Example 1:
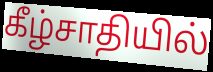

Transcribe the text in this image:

கீழ்சாதியில்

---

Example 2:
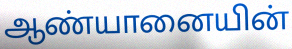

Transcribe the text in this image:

ஆண்யானையின்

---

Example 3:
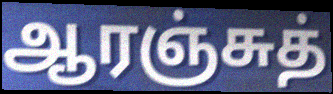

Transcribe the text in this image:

ஆரஞ்சுத்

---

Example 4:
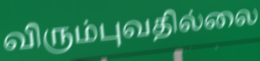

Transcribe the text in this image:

விரும்புவதில்லை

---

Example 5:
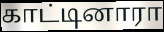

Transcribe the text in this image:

காட்டினாரா